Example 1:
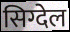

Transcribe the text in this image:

सिग्देल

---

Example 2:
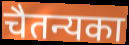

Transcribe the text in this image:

चैतन्यका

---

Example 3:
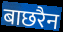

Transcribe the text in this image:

बाछरैन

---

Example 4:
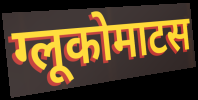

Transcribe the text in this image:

ग्लूकोमाटस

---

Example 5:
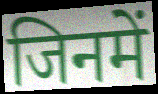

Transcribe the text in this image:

जिनमें